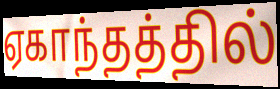
ஏகாந்தத்தில்